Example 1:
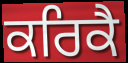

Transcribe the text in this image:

ਕਰਿਕੈ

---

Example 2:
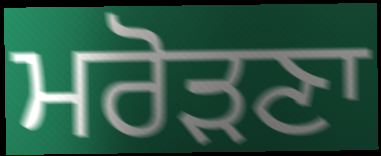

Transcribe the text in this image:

ਮਰੋੜਣਾ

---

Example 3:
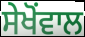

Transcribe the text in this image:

ਸੇਖੋਂਵਾਲ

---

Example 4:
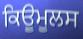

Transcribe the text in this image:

ਕਿਊਮੂਲਸ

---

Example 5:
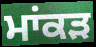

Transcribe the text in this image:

ਮਾਂਕੜ